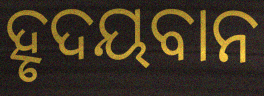
ହୃଦୟବାନ